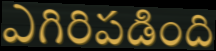
ఎగిరిపడింది